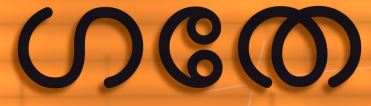
ഗതേ